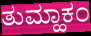
ತುಮ್ಹಾಕಂ